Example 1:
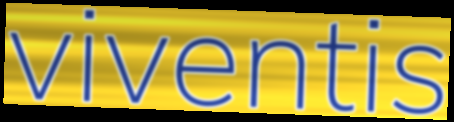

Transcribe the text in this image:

viventis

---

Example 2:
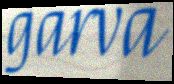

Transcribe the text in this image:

garva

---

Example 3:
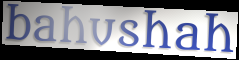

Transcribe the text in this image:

bahushah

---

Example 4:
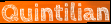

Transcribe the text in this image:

Quintilian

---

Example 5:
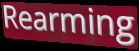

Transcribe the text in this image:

Rearming